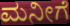
ಮನೀಗೆ